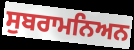
ਸੁਬਰਾਮਨਿਅਨ